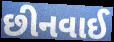
છીનવાઈ